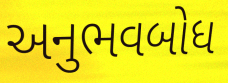
અનુભવબોધ